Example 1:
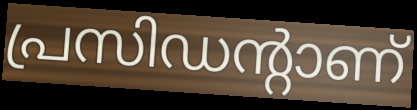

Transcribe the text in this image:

പ്രസിഡന്റാണ്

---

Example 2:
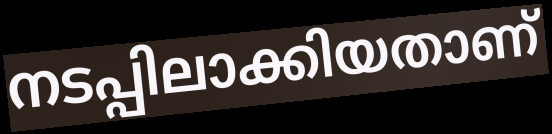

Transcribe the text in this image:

നടപ്പിലാക്കിയതാണ്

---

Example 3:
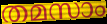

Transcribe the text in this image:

തമസാം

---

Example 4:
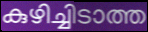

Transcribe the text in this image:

കുഴിച്ചിടാത്ത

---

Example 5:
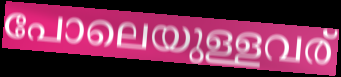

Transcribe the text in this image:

പോലെയുള്ളവര്